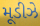
મૂડીઝે